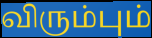
விரும்பும்